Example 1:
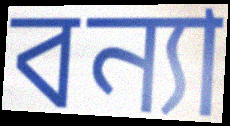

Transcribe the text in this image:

বন্যা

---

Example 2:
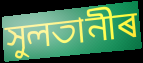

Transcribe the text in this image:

সুলতানীৰ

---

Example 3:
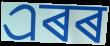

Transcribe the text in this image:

এৰৰ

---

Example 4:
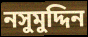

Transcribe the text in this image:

নসুমুদ্দিন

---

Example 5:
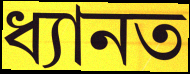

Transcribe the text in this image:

ধ্যানত